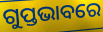
ଗୁପ୍ତଭାବରେ